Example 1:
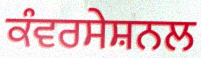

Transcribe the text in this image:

ਕੰਵਰਸੇਸ਼ਨਲ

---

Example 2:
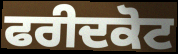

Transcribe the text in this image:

ਫਰੀਦਕੋਟ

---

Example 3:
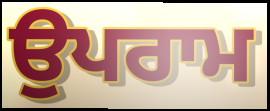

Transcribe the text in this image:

ਉਪਰਾਮ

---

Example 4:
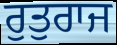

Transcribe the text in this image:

ਰੁਤੁਰਾਜ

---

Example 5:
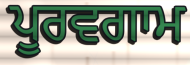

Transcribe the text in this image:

ਪੂਰਵਗਾਮ